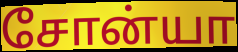
சோன்யா